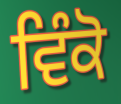
ਵਿੰਕੋ